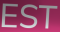
EST